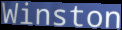
Winston